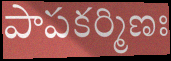
పాపకర్మిణః